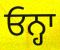
ਓਨ੍ਹਾ